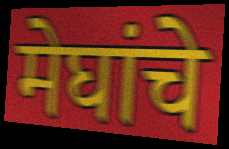
मेघांचे